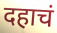
दहाचं